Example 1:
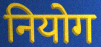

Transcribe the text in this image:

नियोग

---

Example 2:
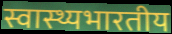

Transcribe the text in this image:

स्वास्थ्यभारतीय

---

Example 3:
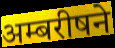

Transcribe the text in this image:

अम्बरीषने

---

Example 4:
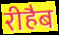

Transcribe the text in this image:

रीहैब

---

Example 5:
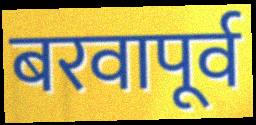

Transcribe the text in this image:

बरवापूर्व